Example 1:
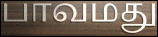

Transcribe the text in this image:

பாவமது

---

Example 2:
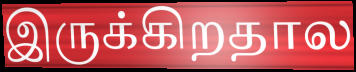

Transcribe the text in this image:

இருக்கிறதால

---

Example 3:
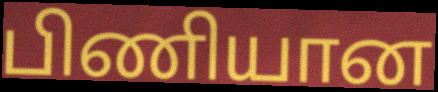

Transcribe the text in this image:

பிணியான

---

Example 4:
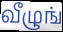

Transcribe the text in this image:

வீழுங்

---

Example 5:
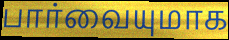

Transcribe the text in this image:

பார்வையுமாக